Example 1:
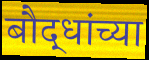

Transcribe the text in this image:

बौद्धांच्या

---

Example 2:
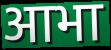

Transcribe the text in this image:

आभा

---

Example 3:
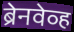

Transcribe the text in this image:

ब्रेनवेव्ह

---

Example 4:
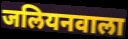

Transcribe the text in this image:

जलियनवाला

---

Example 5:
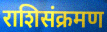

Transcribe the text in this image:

राशिसंक्रमण